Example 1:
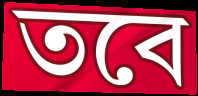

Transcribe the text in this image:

তবে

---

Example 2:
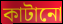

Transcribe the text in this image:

কাটানো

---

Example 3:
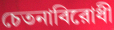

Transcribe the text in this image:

চেতনাবিরোধী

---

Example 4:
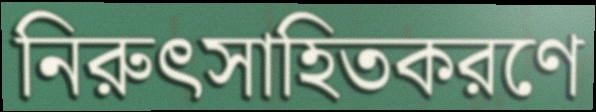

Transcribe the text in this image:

নিরুৎসাহিতকরণে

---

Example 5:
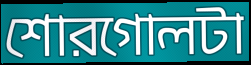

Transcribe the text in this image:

শোরগোলটা